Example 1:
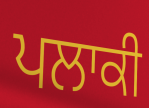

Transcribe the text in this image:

ਪਲਾਕੀ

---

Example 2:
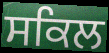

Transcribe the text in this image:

ਸਕਿਲ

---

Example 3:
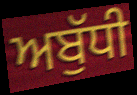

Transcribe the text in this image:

ਅਬੁੱਧੀ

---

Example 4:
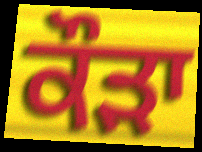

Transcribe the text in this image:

ਕੌਡ਼ਾ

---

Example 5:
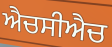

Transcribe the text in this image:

ਐਚਸੀਐਚ